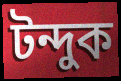
টন্দুক